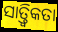
ସାତ୍ତ୍ଵିକତା